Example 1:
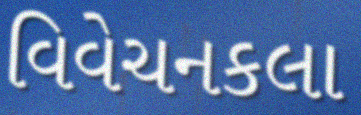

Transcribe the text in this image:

વિવેચનકલા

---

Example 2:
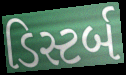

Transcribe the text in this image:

ડિસ્ટર્બ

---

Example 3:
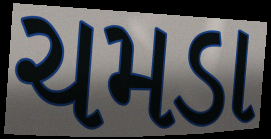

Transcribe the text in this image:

ચમડા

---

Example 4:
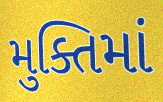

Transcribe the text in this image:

મુક્તિમાં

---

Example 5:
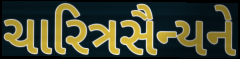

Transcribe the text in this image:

ચારિત્રસૈન્યને